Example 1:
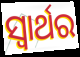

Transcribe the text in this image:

ସ୍ଵାର୍ଥର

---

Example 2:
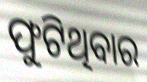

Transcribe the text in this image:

ଫୁଟିଥିବାର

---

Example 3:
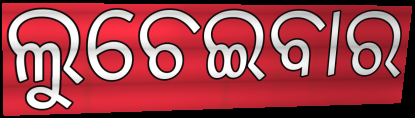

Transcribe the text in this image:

ଲୁଚେଇବାର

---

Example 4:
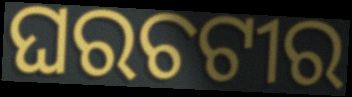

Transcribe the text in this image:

ଘରଚଟୀର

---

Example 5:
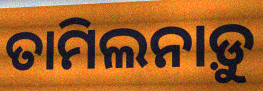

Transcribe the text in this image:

ତାମିଲନାଡ଼ୁ